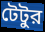
টেটুর